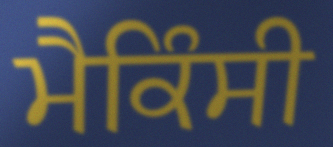
ਮੈਕਿੰਸੀ